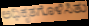
ಅಧಿಕೃತಗೊಳಿಸಿತು